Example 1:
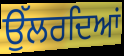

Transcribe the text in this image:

ਉੱਲਰਦਿਆਂ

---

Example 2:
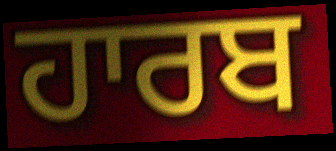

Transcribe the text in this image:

ਹਾਰਬ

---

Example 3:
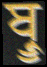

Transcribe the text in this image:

ਬ੍ਰੂ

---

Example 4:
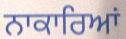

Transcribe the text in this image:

ਨਾਕਾਰਿਆਂ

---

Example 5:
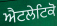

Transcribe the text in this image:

ਐਟਲੇਟਿਕੋ